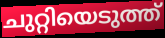
ചുറ്റിയെടുത്ത്